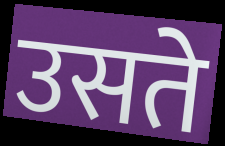
उसते